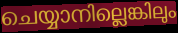
ചെയ്യാനില്ലെങ്കിലും